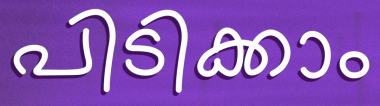
പിടിക്കാം